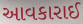
આવકારાઈ